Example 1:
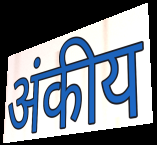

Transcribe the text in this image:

अंकीय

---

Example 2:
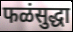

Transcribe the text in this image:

फळंसुद्धा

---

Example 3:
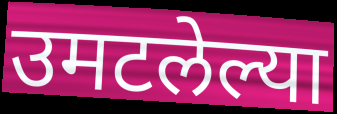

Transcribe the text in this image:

उमटलेल्या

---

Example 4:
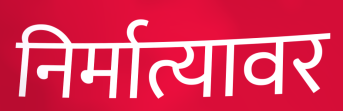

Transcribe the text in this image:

निर्मात्यावर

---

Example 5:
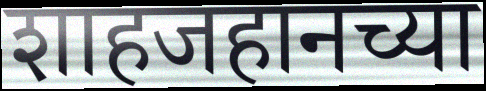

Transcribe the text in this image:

शाहजहानच्या